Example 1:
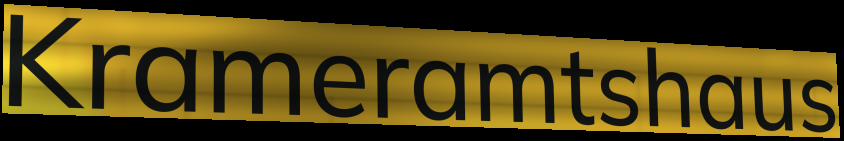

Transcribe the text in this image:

Krameramtshaus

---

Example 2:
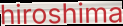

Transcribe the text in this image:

hiroshima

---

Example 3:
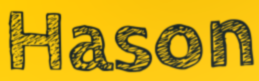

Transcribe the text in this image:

Hason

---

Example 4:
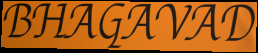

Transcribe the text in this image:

BHAGAVAD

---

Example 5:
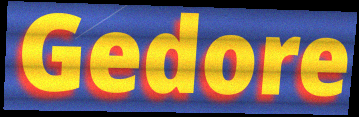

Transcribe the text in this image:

Gedore